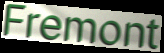
Fremont